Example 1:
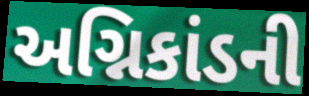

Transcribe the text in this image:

અગ્નિકાંડની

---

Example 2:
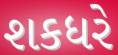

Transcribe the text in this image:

શકધરે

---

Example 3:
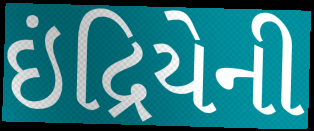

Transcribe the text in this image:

ઇંદ્રિયેની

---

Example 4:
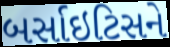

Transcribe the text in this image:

બર્સાઇટિસને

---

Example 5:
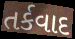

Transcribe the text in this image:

તર્કવાદ